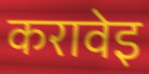
करावेइ